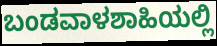
ಬಂಡವಾಳಶಾಹಿಯಲ್ಲಿ